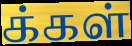
க்கள்